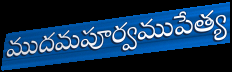
ముదమపూర్వముపేత్య